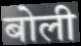
बोली